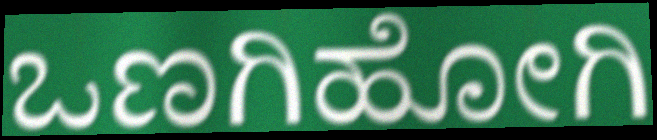
ಒಣಗಿಹೋಗಿ